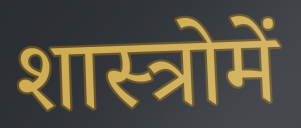
शास्त्रोमें